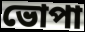
ভোপা